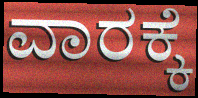
ವಾರಕ್ಕೆ